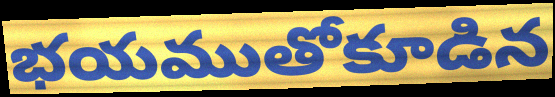
భయముతోకూడిన